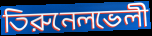
তিৰুনেলভেলী